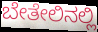
ಬೇತೇಲಿನಲ್ಲಿ